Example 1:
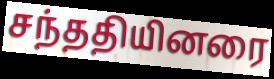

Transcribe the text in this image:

சந்ததியினரை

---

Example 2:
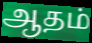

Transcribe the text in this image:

ஆதம்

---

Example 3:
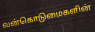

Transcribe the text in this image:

வன்கொடுமைகளின்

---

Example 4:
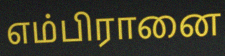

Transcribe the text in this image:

எம்பிரானை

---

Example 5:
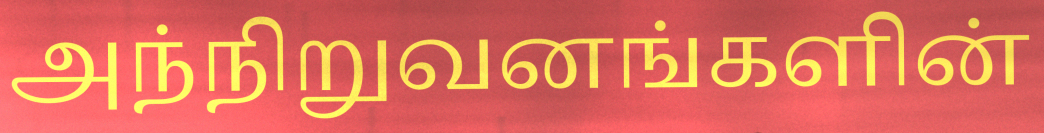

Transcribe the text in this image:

அந்நிறுவனங்களின்